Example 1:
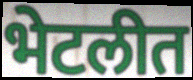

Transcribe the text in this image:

भेटलीत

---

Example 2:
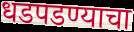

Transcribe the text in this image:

धडपडण्याचा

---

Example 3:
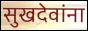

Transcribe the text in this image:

सुखदेवांना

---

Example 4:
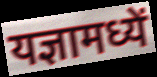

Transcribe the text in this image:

यज्ञामध्यें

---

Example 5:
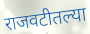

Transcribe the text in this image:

राजवटीतल्या